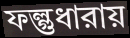
ফল্গুধারায়